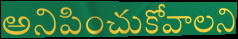
అనిపించుకోవాలని